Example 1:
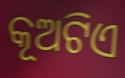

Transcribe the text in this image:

କୂଅଟିଏ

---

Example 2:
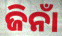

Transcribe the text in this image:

ଜିନାଁ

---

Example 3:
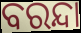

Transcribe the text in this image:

ବରନ୍ଦା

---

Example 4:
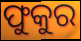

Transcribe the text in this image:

ଫୁକୁର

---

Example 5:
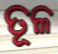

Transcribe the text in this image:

ତୂଳ